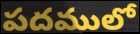
పదములో